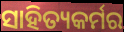
ସାହିତ୍ୟକର୍ମର